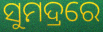
ସୁମଦ୍ରରେ